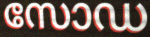
സോഡ